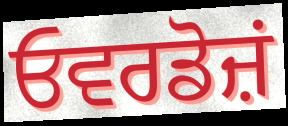
ਓਵਰਡੋਜ਼ਂ